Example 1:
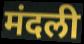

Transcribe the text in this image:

मंदली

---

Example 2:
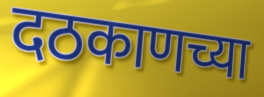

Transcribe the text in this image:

दठकाणच्या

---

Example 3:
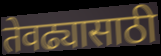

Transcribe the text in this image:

तेवढ्यासाठी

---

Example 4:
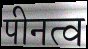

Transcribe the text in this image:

पीनत्व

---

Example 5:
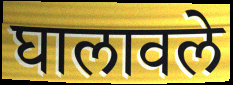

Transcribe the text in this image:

घालावले